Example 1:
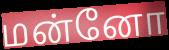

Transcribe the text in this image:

மன்னோ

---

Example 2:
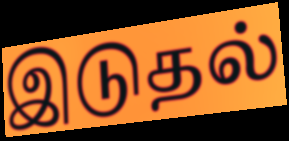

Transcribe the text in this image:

இடுதல்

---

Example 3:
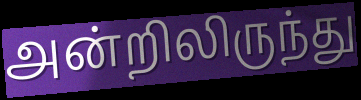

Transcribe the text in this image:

அன்றிலிருந்து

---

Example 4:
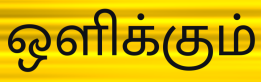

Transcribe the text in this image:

ஒளிக்கும்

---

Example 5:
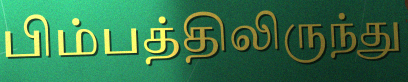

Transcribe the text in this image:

பிம்பத்திலிருந்து